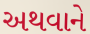
અથવાને